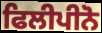
ਫਿਲੀਪੀਨੋ